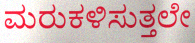
ಮರುಕಳಿಸುತ್ತಲೇ